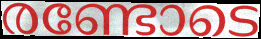
രണ്ടോടെ